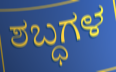
ಶಬ್ಧಗಳ